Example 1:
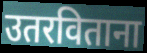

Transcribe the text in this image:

उतरविताना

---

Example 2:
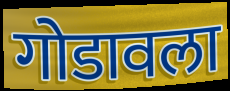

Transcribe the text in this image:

गोडावला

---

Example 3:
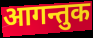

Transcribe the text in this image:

आगन्तुक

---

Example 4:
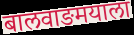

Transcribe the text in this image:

बालवाङमयाला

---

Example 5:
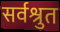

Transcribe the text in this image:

सर्वश्रुत